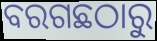
ବରଗଛଠାରୁ